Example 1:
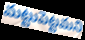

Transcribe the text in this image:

మట్టుపెట్టమని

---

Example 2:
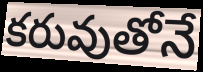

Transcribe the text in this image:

కరువుతోనే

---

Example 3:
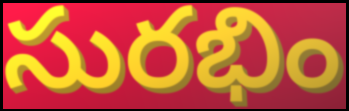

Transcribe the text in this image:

సురభిం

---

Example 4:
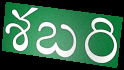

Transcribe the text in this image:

శబరి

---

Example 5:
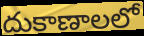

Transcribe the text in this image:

దుకాణాలలో